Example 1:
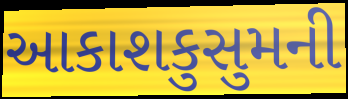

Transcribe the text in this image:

આકાશકુસુમની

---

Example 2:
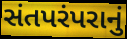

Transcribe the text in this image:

સંતપરંપરાનું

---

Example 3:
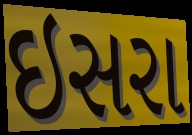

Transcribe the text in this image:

ઇસરા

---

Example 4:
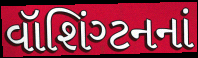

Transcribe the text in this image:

વૉશિંગ્ટનનાં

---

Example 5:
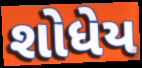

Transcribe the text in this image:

શોધેય